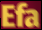
Efa